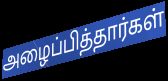
அழைப்பித்தார்கள்